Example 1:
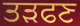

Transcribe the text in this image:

ਤੜਫਣ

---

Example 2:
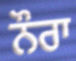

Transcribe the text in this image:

ਨੌਰਾ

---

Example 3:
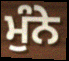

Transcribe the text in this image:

ਮੁੰਨੇ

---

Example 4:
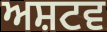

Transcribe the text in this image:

ਅਸ਼ਟਵ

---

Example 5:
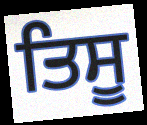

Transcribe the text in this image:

ਤਿਸੂ